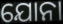
ଯୋନା